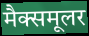
मैक्समूलर